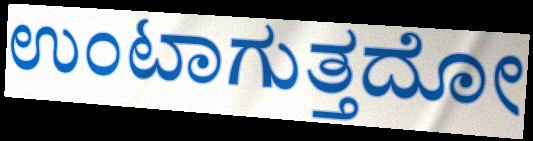
ಉಂಟಾಗುತ್ತದೋ